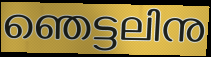
ഞെട്ടലിനു